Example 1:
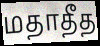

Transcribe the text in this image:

மதாதீத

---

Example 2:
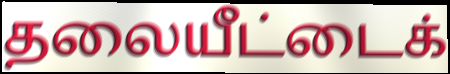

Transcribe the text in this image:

தலையீட்டைக்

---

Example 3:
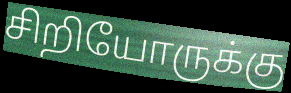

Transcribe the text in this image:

சிறியோருக்கு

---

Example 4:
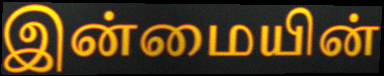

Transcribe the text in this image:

இன்மையின்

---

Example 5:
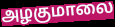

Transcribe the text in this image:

அழகுமாலை